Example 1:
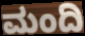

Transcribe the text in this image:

ಮಂದಿ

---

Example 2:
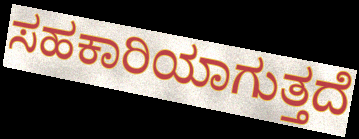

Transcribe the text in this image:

ಸಹಕಾರಿಯಾಗುತ್ತದೆ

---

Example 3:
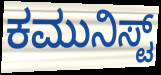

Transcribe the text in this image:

ಕಮುನಿಸ್ಟ್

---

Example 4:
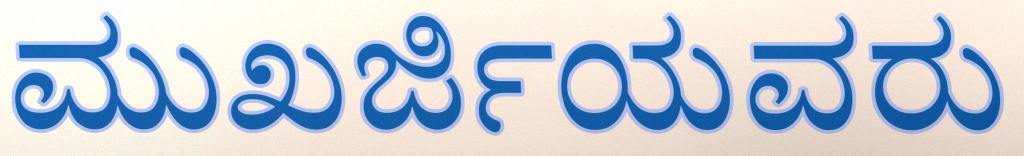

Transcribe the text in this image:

ಮುಖರ್ಜಿಯವರು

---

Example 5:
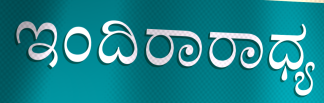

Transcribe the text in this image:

ಇಂದಿರಾರಾಧ್ಯ